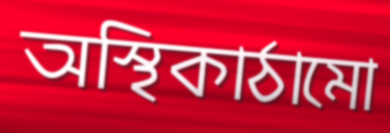
অস্থিকাঠামো